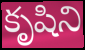
కృషిని